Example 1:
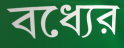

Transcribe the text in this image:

বধ্যের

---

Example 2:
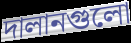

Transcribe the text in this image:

দালানগুলো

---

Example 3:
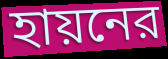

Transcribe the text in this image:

হায়নের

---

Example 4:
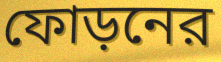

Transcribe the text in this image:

ফোড়নের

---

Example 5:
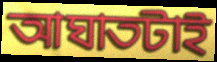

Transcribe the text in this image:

আঘাতটাই